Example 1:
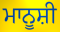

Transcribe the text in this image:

ਮਾਨੂਸ਼ੀ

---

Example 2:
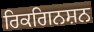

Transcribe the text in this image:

ਰਿਕਗਿਨਸ਼ਨ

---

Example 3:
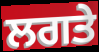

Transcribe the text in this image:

ਲਗਤੇ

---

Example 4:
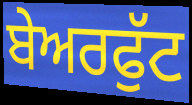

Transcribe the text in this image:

ਬੇਅਰਫੁੱਟ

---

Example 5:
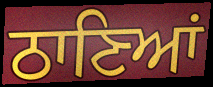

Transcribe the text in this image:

ਠਾਣਿਆਂ